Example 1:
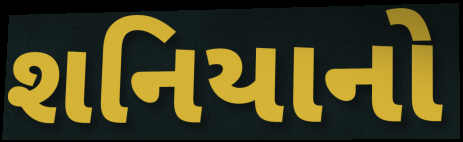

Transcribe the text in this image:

શનિયાનો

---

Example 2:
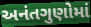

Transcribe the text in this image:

અનંતગુણોમાં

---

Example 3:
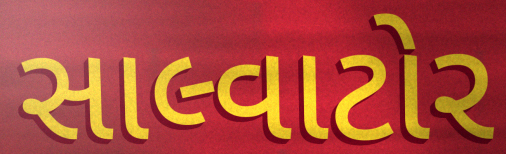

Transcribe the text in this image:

સાલ્વાટોર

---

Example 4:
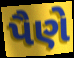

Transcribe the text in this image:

પૈણે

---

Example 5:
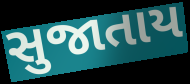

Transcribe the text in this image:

સુજાતાય